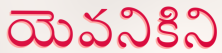
యెవనికిని